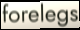
forelegs